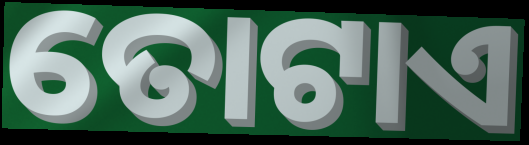
ତୋଟାଏ